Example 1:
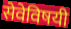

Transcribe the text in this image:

सेवेविषयी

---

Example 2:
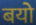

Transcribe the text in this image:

बयो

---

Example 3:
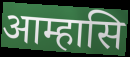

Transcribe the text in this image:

आम्हासि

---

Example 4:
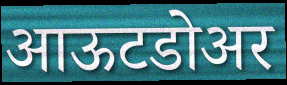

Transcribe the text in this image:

आऊटडोअर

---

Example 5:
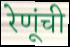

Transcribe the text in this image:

रेणूंची